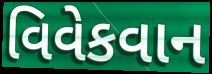
વિવેકવાન